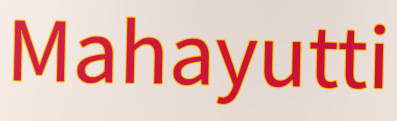
Mahayutti